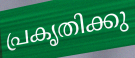
പ്രകൃതിക്കു